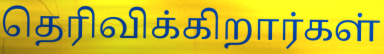
தெரிவிக்கிறார்கள்